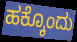
ಹಕ್ಕೊಂದು